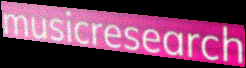
musicresearch